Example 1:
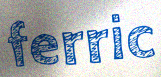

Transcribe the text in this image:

ferric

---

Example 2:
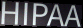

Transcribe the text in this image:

HIPAA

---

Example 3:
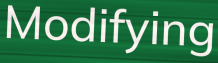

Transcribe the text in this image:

Modifying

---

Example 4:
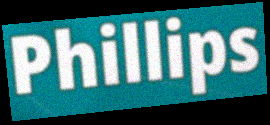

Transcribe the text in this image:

Phillips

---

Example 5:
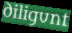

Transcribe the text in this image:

diligunt